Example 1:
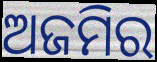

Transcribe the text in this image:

ଅଜମିର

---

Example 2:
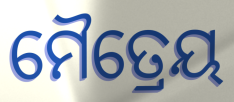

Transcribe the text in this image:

ମୈତ୍ରେୟ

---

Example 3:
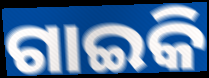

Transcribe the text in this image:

ଗାଇକି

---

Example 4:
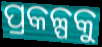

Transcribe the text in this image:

ପ୍ରକଳ୍ପକୁ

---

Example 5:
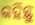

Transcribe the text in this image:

କହିଛୁ